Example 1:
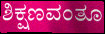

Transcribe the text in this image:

ಶಿಕ್ಷಣವಂತೂ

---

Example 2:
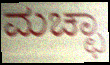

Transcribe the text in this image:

ಮಚ್ಛಾ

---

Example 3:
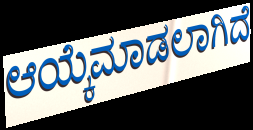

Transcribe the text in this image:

ಆಯ್ಕೆಮಾಡಲಾಗಿದೆ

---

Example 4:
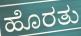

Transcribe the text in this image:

ಹೊರತು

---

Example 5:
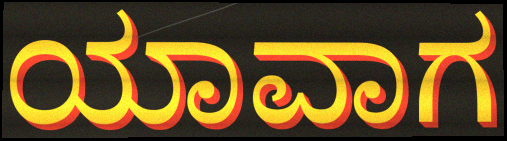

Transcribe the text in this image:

ಯಾವಾಗ